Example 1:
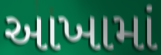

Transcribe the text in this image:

આખામાં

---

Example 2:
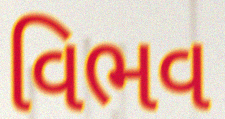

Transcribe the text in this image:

વિભવ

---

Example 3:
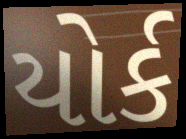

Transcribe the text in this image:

યોર્ક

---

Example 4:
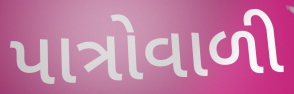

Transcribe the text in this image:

પાત્રોવાળી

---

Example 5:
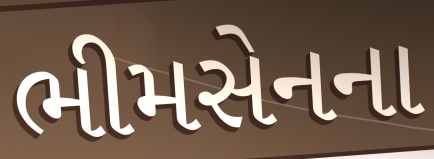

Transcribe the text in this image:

ભીમસેનના